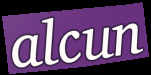
alcun